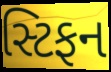
સ્ટિફન